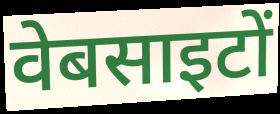
वेबसाइटों